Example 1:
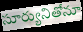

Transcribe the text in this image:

సూర్యునితోనూ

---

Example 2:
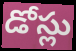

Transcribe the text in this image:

డోస్లు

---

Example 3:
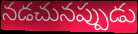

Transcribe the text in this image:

నడచునప్పుడు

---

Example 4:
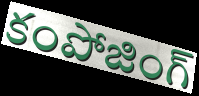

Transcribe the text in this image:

కంపోజింగ్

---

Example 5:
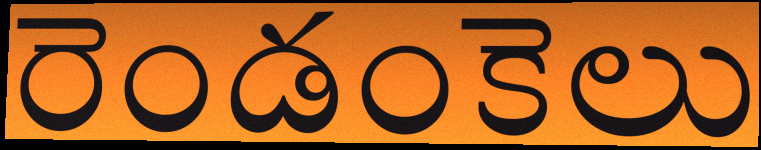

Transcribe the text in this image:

రెండంకెలు